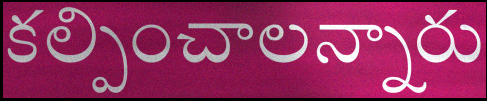
కల్పించాలన్నారు